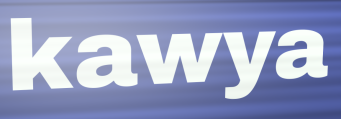
kawya